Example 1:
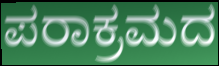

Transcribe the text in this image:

ಪರಾಕ್ರಮದ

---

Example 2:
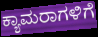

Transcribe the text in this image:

ಕ್ಯಾಮರಾಗಳಿಗೆ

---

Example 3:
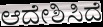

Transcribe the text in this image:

ಆದೇಶಿಸಿದೆ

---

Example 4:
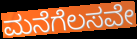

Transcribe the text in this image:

ಮನೆಗೆಲಸವೇ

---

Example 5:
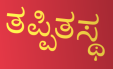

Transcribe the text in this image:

ತಪ್ಪಿತಸ್ಥ